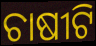
ଚାଷୀଟି